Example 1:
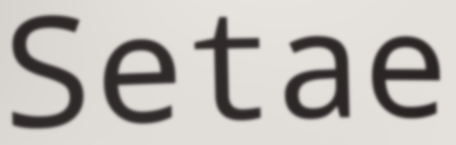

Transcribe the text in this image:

Setae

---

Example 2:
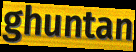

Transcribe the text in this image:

ghuntan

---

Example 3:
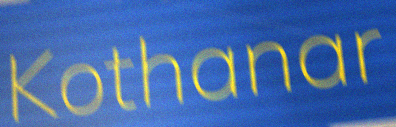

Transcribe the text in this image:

Kothanar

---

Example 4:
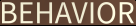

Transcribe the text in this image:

BEHAVIOR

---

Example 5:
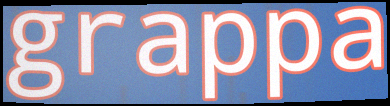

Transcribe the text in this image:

grappa